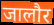
जालौर